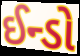
ઈન્ડો